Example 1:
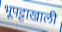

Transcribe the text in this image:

भूपट्टाखाली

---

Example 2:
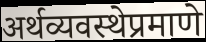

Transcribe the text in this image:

अर्थव्यवस्थेप्रमाणे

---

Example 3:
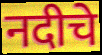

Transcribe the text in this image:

नदीचे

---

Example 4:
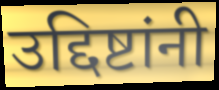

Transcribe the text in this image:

उद्दिष्टांनी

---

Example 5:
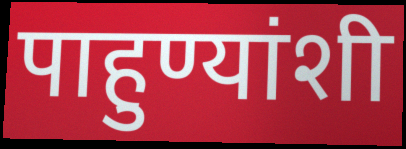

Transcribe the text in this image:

पाहुण्यांशी